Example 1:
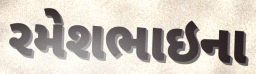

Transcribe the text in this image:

રમેશભાઇના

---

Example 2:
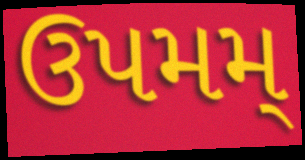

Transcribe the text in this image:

ઉપમમ્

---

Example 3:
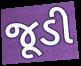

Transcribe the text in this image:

જૂડી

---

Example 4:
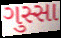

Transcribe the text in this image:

ગુસ્સા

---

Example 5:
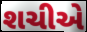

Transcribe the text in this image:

શચીએ